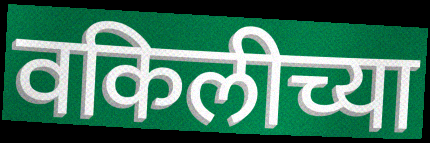
वकिलीच्या